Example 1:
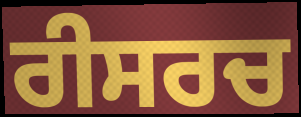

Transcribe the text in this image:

ਰੀਸਰਚ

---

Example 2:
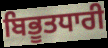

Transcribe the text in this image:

ਬਿਭੂਤਧਾਰੀ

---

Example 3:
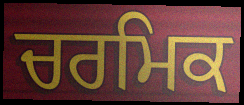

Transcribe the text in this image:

ਚਰਮਿਕ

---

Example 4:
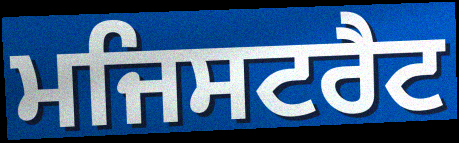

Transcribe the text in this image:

ਮਜਿਸਟਰੈਟ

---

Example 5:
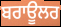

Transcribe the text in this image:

ਬਰਾਊਲਰ